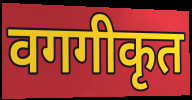
वगगीकृत